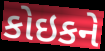
કોઇકને